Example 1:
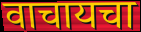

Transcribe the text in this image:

वाचायचा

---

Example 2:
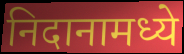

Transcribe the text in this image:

निदानामध्ये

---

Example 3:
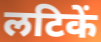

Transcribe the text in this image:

लटिकें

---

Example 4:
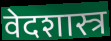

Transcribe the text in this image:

वेदशास्त्र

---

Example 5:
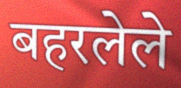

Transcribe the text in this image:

बहरलेले